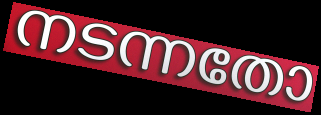
നടന്നതോ